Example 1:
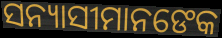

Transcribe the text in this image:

ସନ୍ୟାସୀମାନଙେକ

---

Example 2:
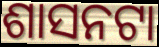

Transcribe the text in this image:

ଶାସନଟା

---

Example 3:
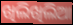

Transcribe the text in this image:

ଖିଲିଖିଲିଆ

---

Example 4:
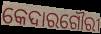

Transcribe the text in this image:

କେଦାରଗୌରୀ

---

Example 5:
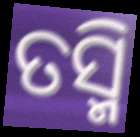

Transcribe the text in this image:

ତସ୍ମି